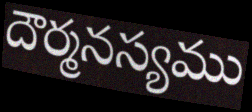
దౌర్మనస్యము